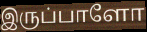
இருப்பாளோ